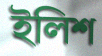
ইলিশ